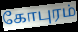
கோபுரம்